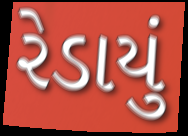
રેડાયું